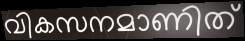
വികസനമാണിത്